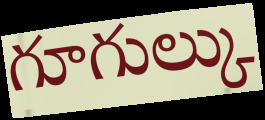
గూగుల్కు